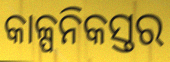
କାଳ୍ପନିକସ୍ତର